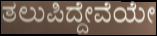
ತಲುಪಿದ್ದೇವೆಯೇ